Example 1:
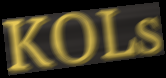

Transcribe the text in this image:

KOLs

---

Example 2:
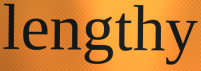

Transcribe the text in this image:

lengthy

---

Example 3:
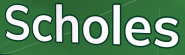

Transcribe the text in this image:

Scholes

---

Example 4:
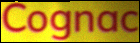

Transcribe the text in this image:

Cognac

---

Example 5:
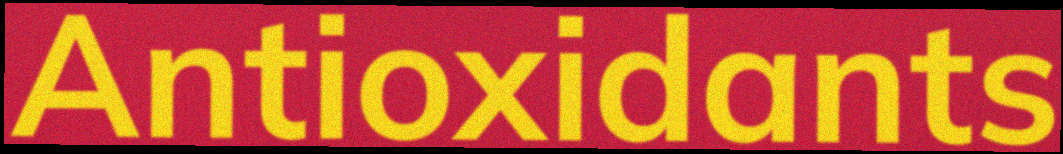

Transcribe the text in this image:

Antioxidants